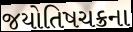
જયોતિષચક્રના